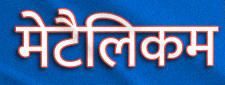
मेटैलिकम